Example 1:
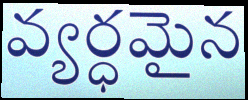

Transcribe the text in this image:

వ్యర్ధమైన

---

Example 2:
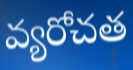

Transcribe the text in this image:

వ్యరోచత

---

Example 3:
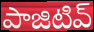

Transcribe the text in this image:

పాజిటివ్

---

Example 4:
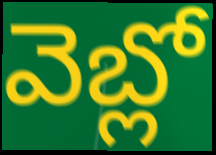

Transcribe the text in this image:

వెబ్లో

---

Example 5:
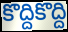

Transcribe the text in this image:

కొద్దికొద్ది